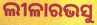
ଲୀଳାରଭସୁ